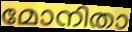
മോനിതാ